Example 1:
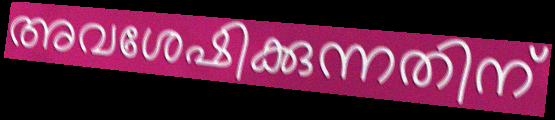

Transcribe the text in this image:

അവശേഷിക്കുന്നതിന്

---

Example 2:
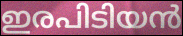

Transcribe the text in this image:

ഇരപിടിയൻ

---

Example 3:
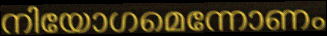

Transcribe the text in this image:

നിയോഗമെന്നോണം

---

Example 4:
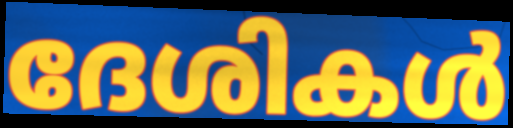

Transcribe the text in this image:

ദേശികൾ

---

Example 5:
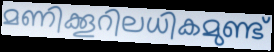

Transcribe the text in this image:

മണിക്കൂറിലധികമുണ്ട്